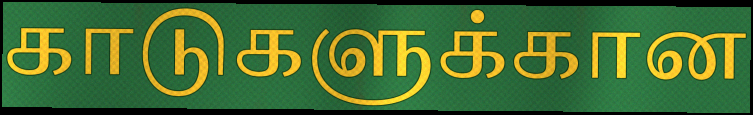
காடுகளுக்கான